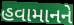
હવામાનને